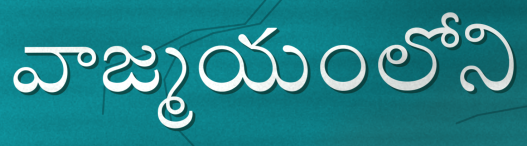
వాజ్మయంలోని